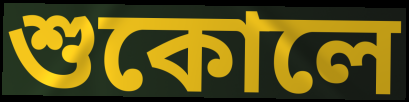
শুকোলে